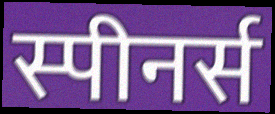
स्पीनर्स